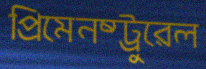
প্ৰিমেনষ্ট্ৰুৱেল